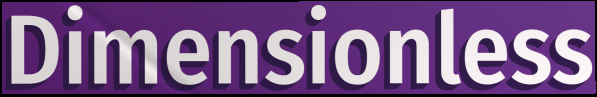
Dimensionless